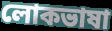
লোকভাষা